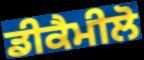
ਡੀਕੈਮੀਲੋ